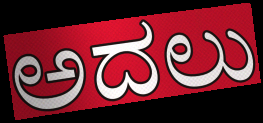
ಅದಲು